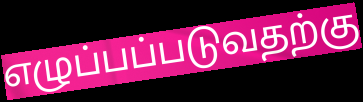
எழுப்பப்படுவதற்கு